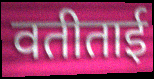
वतीताई